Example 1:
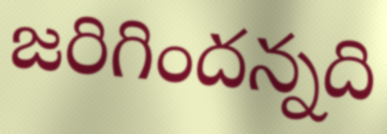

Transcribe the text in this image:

జరిగిందన్నది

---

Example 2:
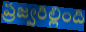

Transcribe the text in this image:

ప్రజ్వరిల్లింది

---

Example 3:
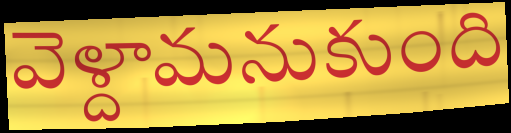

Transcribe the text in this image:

వెళ్దామనుకుంది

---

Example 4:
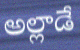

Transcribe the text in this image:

అల్లాడే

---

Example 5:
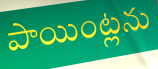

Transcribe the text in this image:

పాయింట్లను